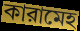
কারামেহ